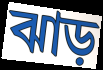
ঝাড়